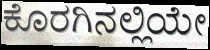
ಕೊರಗಿನಲ್ಲಿಯೇ